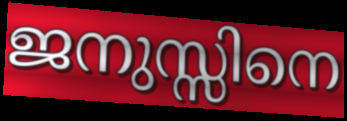
ജനുസ്സിനെ